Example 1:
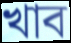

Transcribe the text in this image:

খাব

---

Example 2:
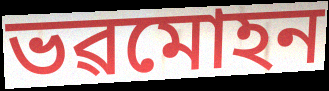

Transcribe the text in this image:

ভৱমোহন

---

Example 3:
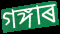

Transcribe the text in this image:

গঙ্গাৰ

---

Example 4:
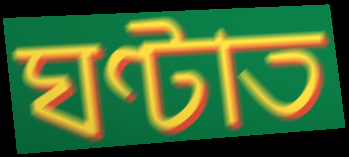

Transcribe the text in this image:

ঘণ্টাত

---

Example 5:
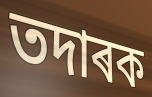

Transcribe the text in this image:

তদাৰক